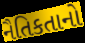
નૈતિકતાનો